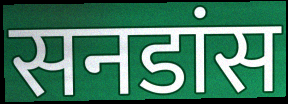
सनडांस